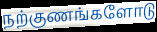
நற்குணங்களோடு